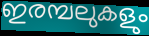
ഇരമ്പലുകളും